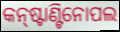
କନ୍‌ଷ୍ଟାଣ୍ଟିନୋପଲ